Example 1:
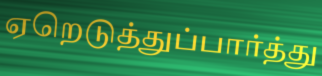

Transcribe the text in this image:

ஏறெடுத்துப்பார்த்து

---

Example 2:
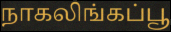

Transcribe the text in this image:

நாகலிங்கப்பூ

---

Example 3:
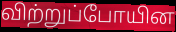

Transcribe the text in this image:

விற்றுப்போயின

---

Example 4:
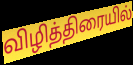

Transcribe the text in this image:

விழித்திரையில்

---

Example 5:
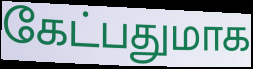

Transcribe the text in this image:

கேட்பதுமாக